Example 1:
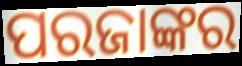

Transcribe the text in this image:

ପରଜାଙ୍କର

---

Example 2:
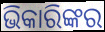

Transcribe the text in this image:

ଭିକାରିଙ୍କର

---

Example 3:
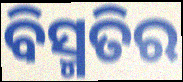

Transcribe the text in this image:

ବିସ୍ମତିର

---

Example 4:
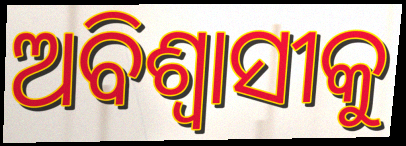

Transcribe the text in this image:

ଅବିଶ୍ୱାସୀକୁ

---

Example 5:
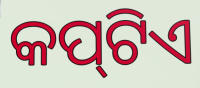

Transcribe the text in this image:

କପ୍‍ଟିଏ